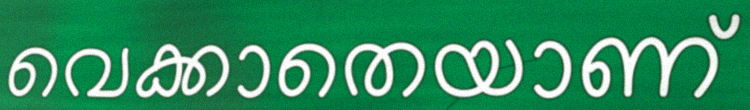
വെക്കാതെയാണ്